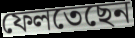
ফেলতেছেন